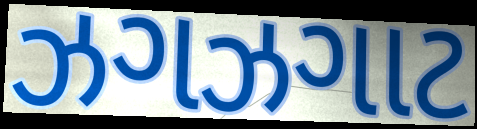
ઝગઝગાટ